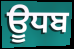
ਊਧਬ